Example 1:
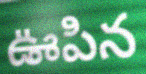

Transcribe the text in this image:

ఊపిన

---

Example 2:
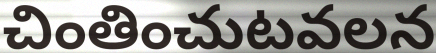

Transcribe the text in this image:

చింతించుటవలన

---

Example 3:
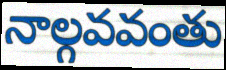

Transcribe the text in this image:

నాల్గవవంతు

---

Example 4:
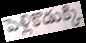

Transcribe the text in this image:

పెళ్లికొడుక్కి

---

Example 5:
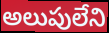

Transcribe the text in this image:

అలుపులేని